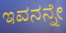
ಇವನನ್ನೇ